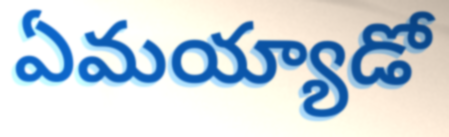
ఏమయ్యాడో